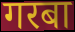
गरबा